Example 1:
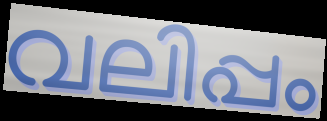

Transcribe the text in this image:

വലിപ്പം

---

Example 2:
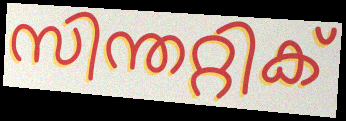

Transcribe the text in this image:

സിന്തറ്റിക്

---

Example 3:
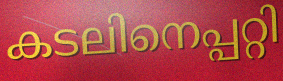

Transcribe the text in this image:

കടലിനെപ്പറ്റി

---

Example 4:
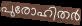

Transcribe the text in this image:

പുരോഹിതർ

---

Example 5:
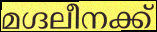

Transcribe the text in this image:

മഗ്ദലീനക്ക്